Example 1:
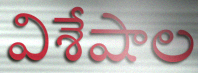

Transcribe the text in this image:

విశేషాల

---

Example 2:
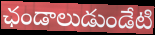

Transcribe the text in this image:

ఛండాలుడుండేటి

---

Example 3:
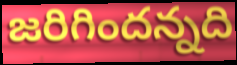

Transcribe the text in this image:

జరిగిందన్నది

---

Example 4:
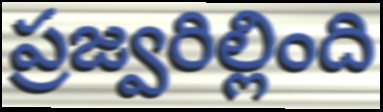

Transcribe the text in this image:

ప్రజ్వరిల్లింది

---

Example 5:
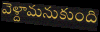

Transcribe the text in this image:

వెళ్దామనుకుంది